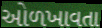
ઓળખાવતા